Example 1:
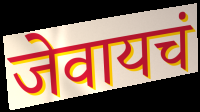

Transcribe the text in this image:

जेवायचं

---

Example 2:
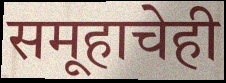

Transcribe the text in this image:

समूहाचेही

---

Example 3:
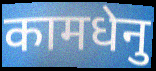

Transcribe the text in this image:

कामधेनु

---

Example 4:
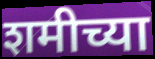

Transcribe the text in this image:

शमीच्या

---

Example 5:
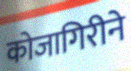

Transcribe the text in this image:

कोजागिरीने